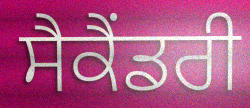
ਸੈਕੈਂਡਰੀ